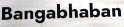
Bangabhaban